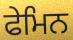
ਫੇਮਿਨ